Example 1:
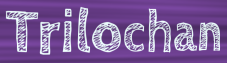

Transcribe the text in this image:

Trilochan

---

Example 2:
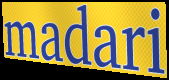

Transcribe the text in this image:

madari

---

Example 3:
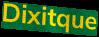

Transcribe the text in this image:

Dixitque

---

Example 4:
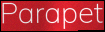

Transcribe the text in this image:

Parapet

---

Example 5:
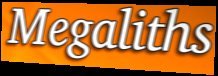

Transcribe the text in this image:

Megaliths